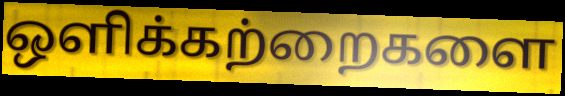
ஒளிக்கற்றைகளை